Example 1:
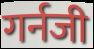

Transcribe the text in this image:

गर्नजी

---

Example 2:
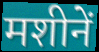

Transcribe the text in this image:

मशीनें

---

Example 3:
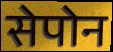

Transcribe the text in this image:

सेपोन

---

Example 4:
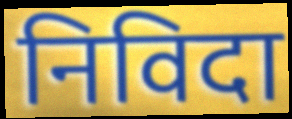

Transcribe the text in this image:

निविदा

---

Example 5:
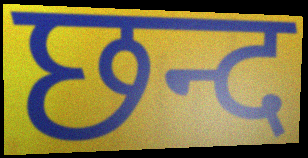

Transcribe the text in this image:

छन्‍द